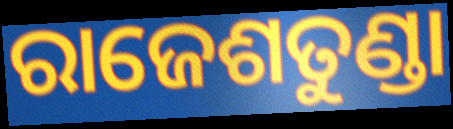
ରାଜେଶତୁଣ୍ଡା